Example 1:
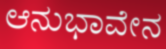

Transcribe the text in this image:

ಆನುಭಾವೇನ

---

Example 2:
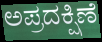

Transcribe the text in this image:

ಅಪ್ರದಕ್ಷಿಣೆ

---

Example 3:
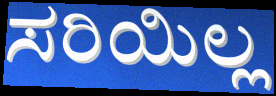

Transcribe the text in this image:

ಸರಿಯಿಲ್ಲ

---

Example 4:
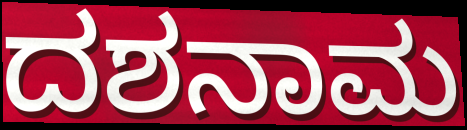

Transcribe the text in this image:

ದಶನಾಮ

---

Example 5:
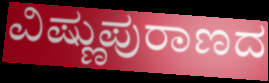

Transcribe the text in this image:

ವಿಷ್ಣುಪುರಾಣದ